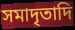
সমাদৃতাদি